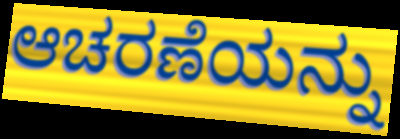
ಆಚರಣೆಯನ್ನು